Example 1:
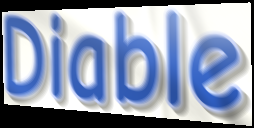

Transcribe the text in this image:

Diable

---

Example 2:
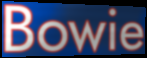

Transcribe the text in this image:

Bowie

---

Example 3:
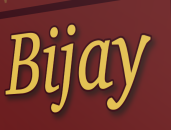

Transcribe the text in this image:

Bijay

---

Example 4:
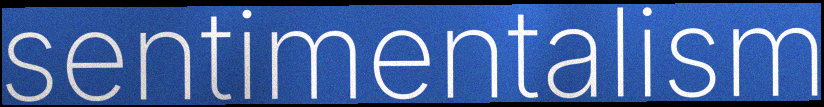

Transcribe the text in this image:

sentimentalism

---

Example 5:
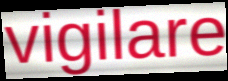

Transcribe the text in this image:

vigilare